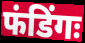
फंडिंगः